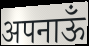
अपनाऊँ